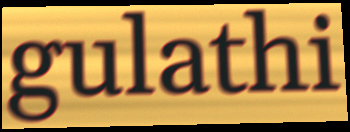
gulathi